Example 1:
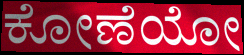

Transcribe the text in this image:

ಕೋಣೆಯೋ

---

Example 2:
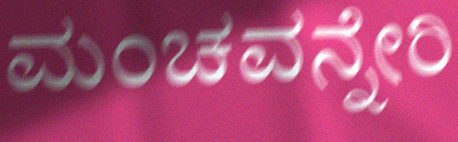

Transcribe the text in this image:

ಮಂಚವನ್ನೇರಿ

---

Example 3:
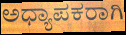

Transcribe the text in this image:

ಅಧ್ಯಾಪಕರಾಗಿ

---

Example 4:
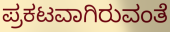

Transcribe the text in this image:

ಪ್ರಕಟವಾಗಿರುವಂತೆ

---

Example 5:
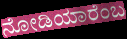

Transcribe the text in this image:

ನೋಡಿಯಾರೆಂಬ